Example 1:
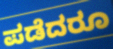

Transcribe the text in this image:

ಪಡೆದರೂ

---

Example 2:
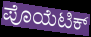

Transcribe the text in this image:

ಪೊಯೆಟಿಕ್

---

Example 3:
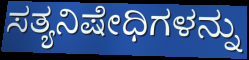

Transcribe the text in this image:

ಸತ್ಯನಿಷೇಧಿಗಳನ್ನು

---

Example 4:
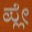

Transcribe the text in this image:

ಪ್ಲೇ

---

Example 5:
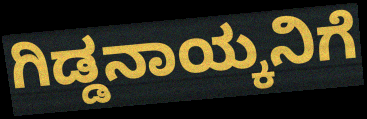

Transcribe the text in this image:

ಗಿಡ್ಡನಾಯ್ಕನಿಗೆ